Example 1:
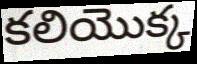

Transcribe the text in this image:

కలియొక్క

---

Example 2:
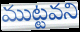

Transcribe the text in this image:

ముట్టవని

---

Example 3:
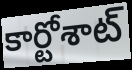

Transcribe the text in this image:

కార్టోశాట్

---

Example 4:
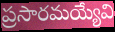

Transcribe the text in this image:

ప్రసారమయ్యేవి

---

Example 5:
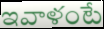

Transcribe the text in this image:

ఇవాళంటే